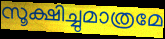
സൂക്ഷിച്ചുമാത്രമേ